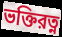
ভক্তিরত্ন